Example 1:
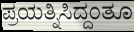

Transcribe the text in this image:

ಪ್ರಯತ್ನಿಸಿದ್ದಂತೂ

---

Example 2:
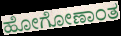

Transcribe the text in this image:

ಹೋಗೋಣಾಂತ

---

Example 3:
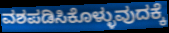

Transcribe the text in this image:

ವಶಪಡಿಸಿಕೊಳ್ಳುವುದಕ್ಕೆ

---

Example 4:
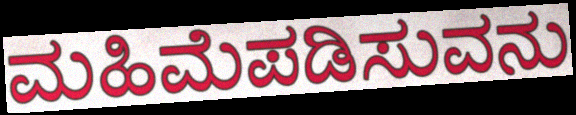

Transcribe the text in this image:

ಮಹಿಮೆಪಡಿಸುವನು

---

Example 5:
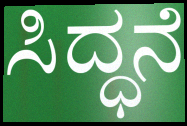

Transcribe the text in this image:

ಸಿದ್ಧನೆ